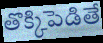
తొక్కిపెడితే